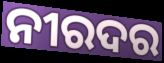
ନୀରଦର